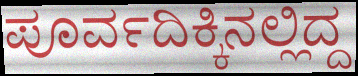
ಪೂರ್ವದಿಕ್ಕಿನಲ್ಲಿದ್ದ